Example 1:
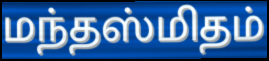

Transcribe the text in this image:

மந்தஸ்மிதம்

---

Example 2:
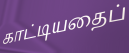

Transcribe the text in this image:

காட்டியதைப்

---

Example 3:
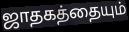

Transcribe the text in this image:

ஜாதகத்தையும்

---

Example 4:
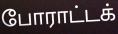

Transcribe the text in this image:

போராட்டக்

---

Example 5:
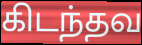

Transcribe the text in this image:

கிடந்தவ